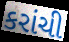
કરાંચી